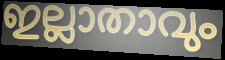
ഇല്ലാതാവും